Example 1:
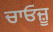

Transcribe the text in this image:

ਚਾਓਜ਼ੂ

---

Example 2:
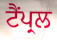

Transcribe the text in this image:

ਟੈਂਪ੍ਰਲ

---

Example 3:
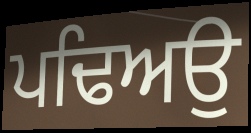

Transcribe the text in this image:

ਪਢਿਅਉ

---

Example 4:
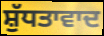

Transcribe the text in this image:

ਸ਼ੁੱਧਤਾਵਾਦ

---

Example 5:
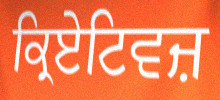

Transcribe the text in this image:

ਕ੍ਰਿਏਟਿਵਜ਼